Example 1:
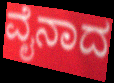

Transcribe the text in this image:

ವೈನಾದ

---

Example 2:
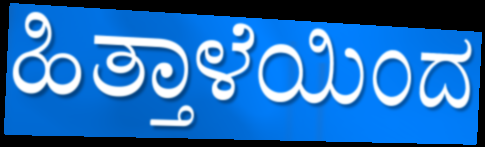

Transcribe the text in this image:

ಹಿತ್ತಾಳೆಯಿಂದ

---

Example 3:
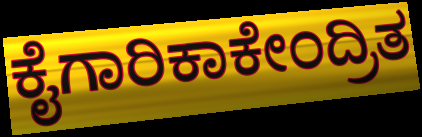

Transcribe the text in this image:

ಕೈಗಾರಿಕಾಕೇಂದ್ರಿತ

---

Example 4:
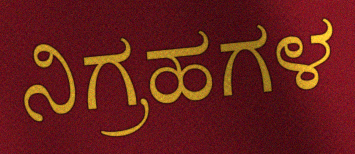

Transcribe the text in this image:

ನಿಗ್ರಹಗಳ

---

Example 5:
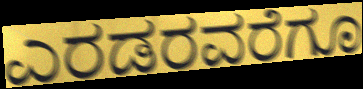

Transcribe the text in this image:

ಎರಡರವರೆಗೂ